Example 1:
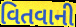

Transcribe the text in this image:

વિતવાની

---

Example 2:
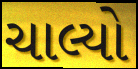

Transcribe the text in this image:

ચાલ્યો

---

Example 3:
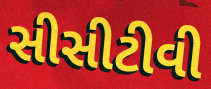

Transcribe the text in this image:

સીસીટીવી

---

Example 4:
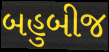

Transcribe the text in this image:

બહુબીજ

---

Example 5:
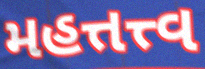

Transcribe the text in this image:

મહત્તત્ત્વ